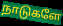
நாடுகளே